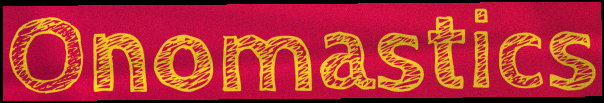
Onomastics